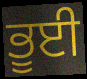
ਭੂਈ